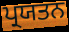
ਪ੍ਰਯਤਨ